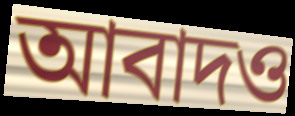
আবাদও